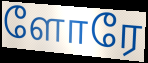
ளோரே